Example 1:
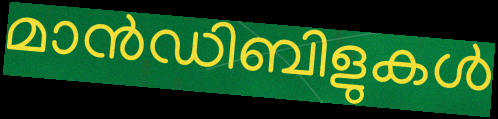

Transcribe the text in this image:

മാൻഡിബിളുകൾ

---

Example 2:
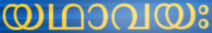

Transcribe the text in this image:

യഥാവയഃ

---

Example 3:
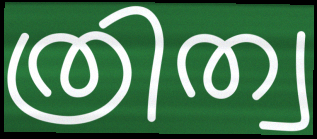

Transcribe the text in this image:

ത്രിത്വ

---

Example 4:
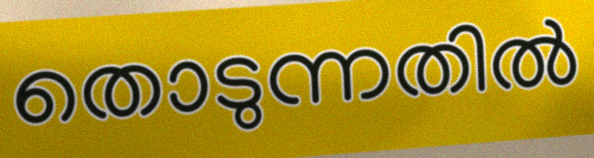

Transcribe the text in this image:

തൊടുന്നതിൽ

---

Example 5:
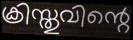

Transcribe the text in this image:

ക്രിസ്തുവിന്റെ